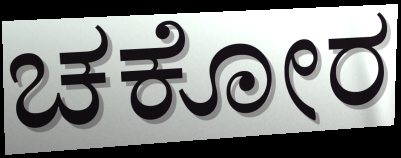
ಚಕೋರ